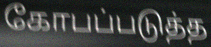
கோபப்படுத்த